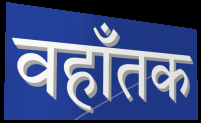
वहाँतक